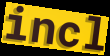
incl